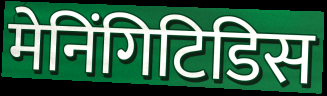
मेनिंगिटिडिस